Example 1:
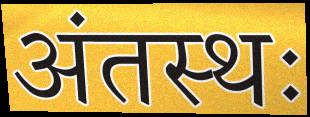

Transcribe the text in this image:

अंतस्थः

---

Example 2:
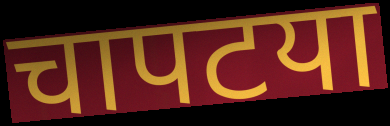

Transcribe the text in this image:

चापटया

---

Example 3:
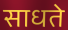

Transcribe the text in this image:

साधते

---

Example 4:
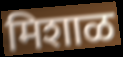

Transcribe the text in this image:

मिशाळ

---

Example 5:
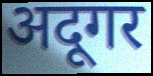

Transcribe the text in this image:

अदूगर